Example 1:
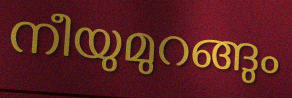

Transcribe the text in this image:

നീയുമുറങ്ങും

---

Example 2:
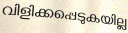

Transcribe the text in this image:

വിളിക്കപ്പെടുകയില്ല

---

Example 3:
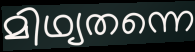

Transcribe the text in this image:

മിഥ്യതന്നെ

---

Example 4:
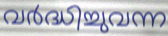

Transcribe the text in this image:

വർദ്ധിച്ചുവന്ന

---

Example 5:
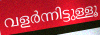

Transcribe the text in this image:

വളർന്നിട്ടുള്ളൂ